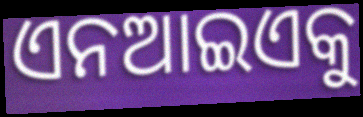
ଏନଆଇଏକୁ